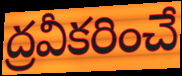
ద్రవీకరించే